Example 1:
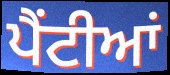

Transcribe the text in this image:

ਪੈਂਟੀਆਂ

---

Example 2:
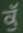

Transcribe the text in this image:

ਕੁੱ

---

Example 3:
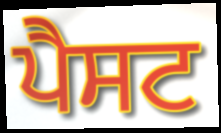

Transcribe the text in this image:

ਪੈਸਟ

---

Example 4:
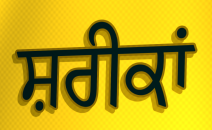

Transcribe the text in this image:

ਸ਼ਰੀਕਾਂ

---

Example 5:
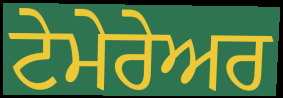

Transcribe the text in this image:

ਟੇਮੇਰੇਅਰ